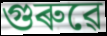
গুৰুৱে